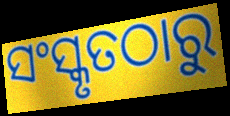
ସଂସ୍କୃତଠାରୁ